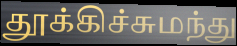
தூக்கிச்சுமந்து